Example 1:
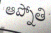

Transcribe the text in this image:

ఆప్నోతి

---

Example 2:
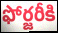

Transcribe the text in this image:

ఫోర్జరీకి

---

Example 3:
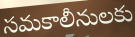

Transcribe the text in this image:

సమకాలీనులకు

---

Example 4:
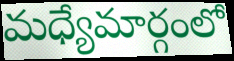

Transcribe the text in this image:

మధ్యేమార్గంలో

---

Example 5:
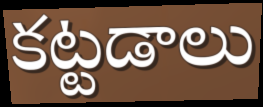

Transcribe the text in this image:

కట్టడాలు